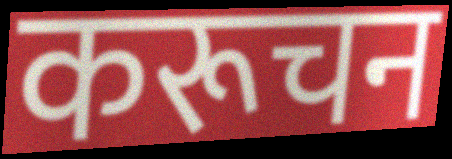
करूचन